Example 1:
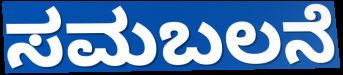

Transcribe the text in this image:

ಸಮಬಲನೆ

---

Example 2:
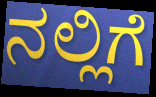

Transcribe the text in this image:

ನಲ್ಲಿಗೆ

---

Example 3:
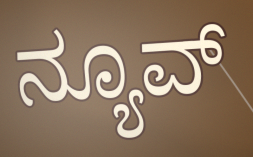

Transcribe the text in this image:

ನ್ಯೂವ್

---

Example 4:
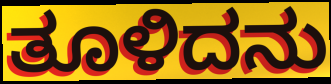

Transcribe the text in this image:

ತೂಳಿದನು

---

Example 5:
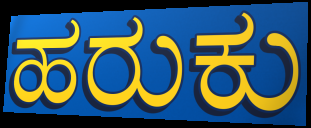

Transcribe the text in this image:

ಹರುಕು